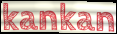
kankan